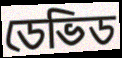
ডেভিড